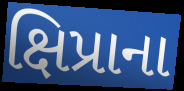
ક્ષિપ્રાના